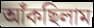
আঁকছিলাম